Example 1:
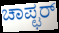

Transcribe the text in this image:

ಚಾಪ್ಟರ್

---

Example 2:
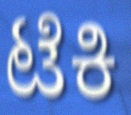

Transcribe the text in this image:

ಟೆಕಿ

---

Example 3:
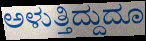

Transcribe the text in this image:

ಅಳುತ್ತಿದ್ದುದೂ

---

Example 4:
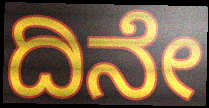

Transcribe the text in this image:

ದಿನೇ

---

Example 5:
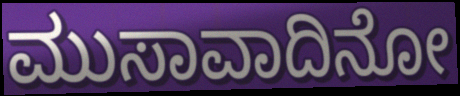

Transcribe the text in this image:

ಮುಸಾವಾದಿನೋ